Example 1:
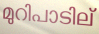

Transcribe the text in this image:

മുറിപാടില്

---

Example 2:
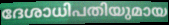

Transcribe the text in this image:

ദേശാധിപതിയുമായ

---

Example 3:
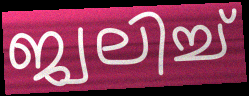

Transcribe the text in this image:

ജ്വലിച്ച്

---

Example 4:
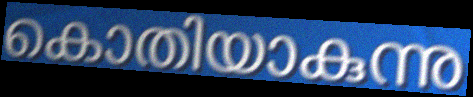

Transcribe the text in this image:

കൊതിയാകുന്നു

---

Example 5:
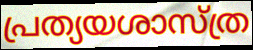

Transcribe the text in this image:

പ്രത്യയശാസ്ത്ര